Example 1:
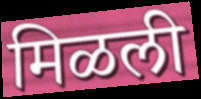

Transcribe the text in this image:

मिळली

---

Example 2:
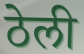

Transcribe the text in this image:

ठेली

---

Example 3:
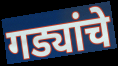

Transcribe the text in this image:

गड्यांचे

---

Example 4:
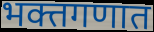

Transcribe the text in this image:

भक्तगणात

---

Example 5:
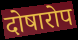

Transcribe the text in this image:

दोषारोप